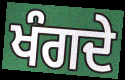
ਖੰਗਦੇ